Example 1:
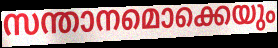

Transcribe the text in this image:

സന്താനമൊക്കെയും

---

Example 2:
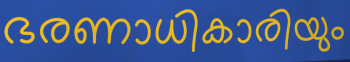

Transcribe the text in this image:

ഭരണാധികാരിയും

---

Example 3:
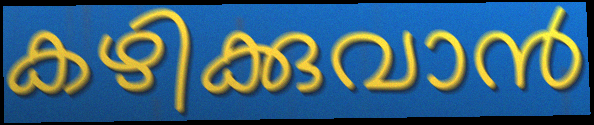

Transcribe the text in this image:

കഴിക്കുവാൻ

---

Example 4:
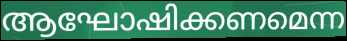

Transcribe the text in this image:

ആഘോഷിക്കണമെന്ന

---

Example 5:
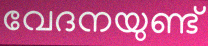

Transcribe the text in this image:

വേദനയുണ്ട്